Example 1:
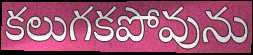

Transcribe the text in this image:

కలుగకపోవును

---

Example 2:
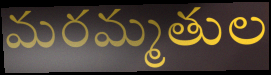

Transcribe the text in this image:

మరమ్మతుల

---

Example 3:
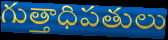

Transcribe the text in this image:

గుత్తాధిపతులు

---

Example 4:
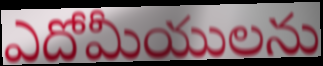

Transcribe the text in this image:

ఎదోమీయులను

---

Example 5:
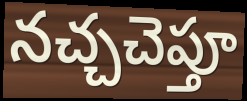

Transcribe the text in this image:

నచ్చచెప్తూ